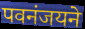
पवनंजयने